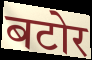
बटोर